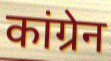
कांग्रेन